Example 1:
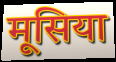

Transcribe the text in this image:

मूसिया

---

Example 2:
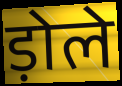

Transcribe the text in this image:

ड़ोले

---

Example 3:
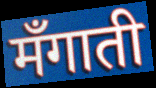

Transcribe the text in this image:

मँगाती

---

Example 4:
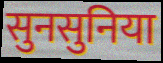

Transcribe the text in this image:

सुनसुनिया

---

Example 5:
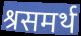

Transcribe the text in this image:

श्रसमर्थ